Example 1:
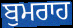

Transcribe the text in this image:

ਬੁਮਰਾਹ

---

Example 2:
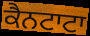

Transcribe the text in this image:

ਕੈਨਟਾਟਾ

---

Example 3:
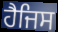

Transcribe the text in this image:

ਹੈਜਿਸ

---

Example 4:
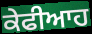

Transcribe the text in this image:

ਕੇਫੀਆਹ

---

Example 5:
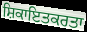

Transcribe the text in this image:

ਸ਼ਿਕਾਇਤਕਰਤਾ